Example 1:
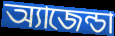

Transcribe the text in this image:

অ্যাজেন্ডা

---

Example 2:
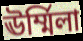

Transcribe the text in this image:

ঊর্ম্মিলা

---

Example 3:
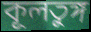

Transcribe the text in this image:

কূলতুঙ্গ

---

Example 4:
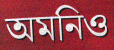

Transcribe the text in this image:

অমনিও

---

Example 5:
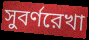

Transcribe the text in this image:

সুবর্ণরেখা